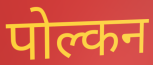
पोल्कन